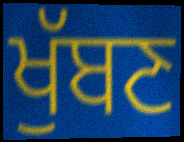
ਖੁੱਬਣ